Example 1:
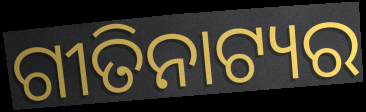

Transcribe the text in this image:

ଗୀତିନାଟ୍ୟର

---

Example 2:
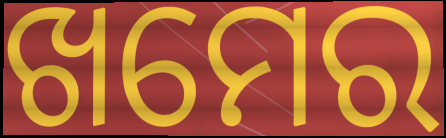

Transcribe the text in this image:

ଖମେର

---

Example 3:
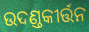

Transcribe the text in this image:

ଉଦଣ୍ଡକୀର୍ତ୍ତନ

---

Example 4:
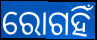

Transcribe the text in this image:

ରୋଗହିଁ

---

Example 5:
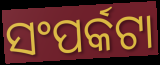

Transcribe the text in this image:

ସଂପର୍କଟା